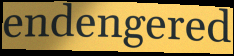
endengered